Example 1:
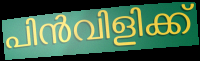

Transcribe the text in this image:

പിൻവിളിക്ക്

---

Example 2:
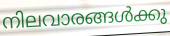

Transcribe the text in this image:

നിലവാരങ്ങൾക്കു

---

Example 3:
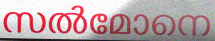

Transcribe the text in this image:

സൽമോനെ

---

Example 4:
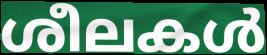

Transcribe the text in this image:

ശീലകൾ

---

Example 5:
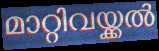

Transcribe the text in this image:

മാറ്റിവയ്ക്കൽ